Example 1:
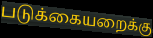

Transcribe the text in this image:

படுக்கையறைக்கு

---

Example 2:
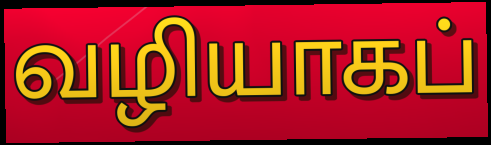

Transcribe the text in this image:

வழியாகப்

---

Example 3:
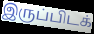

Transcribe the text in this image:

இருப்பிடக்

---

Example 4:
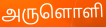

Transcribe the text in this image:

அருளொளி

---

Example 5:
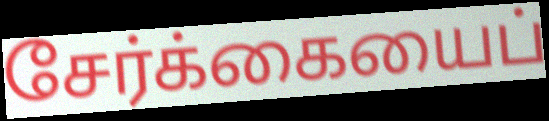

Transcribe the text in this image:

சேர்க்கையைப்